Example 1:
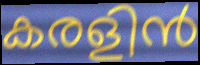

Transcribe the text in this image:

കരളിൻ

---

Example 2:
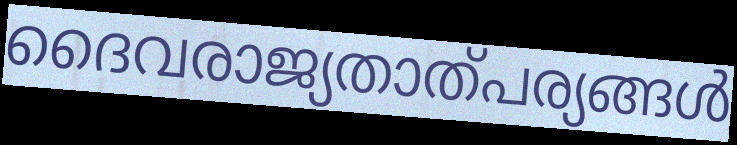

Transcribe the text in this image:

ദൈവരാജ്യതാത്പര്യങ്ങൾ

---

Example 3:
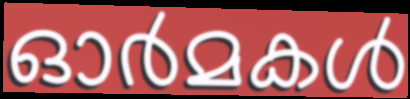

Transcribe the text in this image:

ഓർമകൾ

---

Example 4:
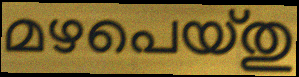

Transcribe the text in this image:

മഴപെയ്തു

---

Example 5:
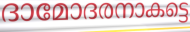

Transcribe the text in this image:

ദാമോദരനാകട്ടെ